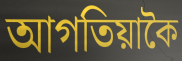
আগতিয়াকৈ